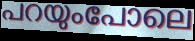
പറയുംപോലെ